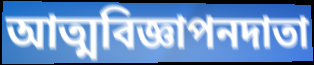
আত্মবিজ্ঞাপনদাতা